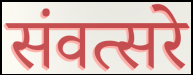
संवत्सरे